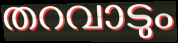
തറവാടും